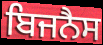
ਬਿਜਨੈਸ